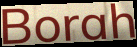
Borah